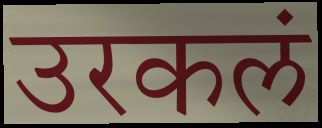
उरकलं